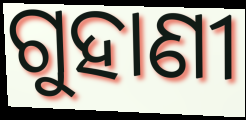
ଗୁହାଣୀ